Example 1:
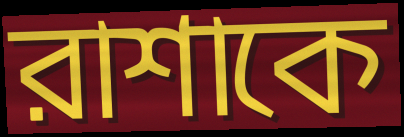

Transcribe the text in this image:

রাশাকে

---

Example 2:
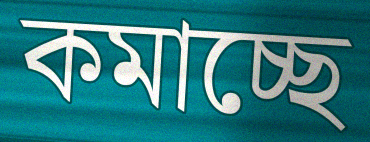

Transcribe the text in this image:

কমাচ্ছে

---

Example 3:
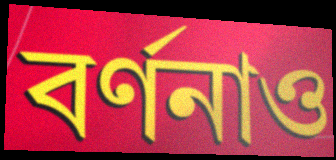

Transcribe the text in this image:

বর্ণনাও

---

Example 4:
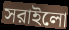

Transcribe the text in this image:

সরাইলো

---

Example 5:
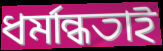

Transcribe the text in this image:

ধর্মান্ধতাই